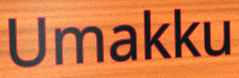
Umakku